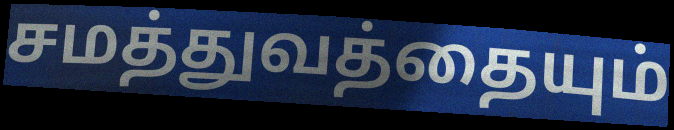
சமத்துவத்தையும்